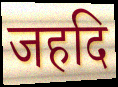
जहदि